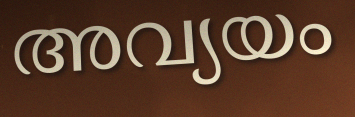
അവ്യയം